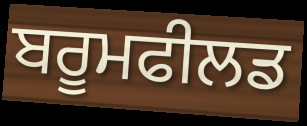
ਬਰੂਮਫੀਲਡ